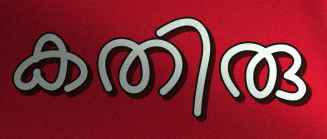
കതിരു